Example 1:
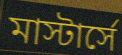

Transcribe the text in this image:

মাস্টার্সে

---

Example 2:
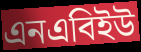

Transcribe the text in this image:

এনএবিইউ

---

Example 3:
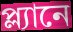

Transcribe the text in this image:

প্ল্যানে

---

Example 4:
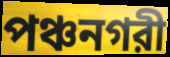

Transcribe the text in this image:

পঞ্চনগরী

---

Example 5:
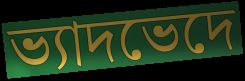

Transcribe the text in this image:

ভ্যাদভেদে